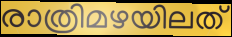
രാത്രിമഴയിലത്